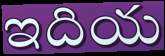
ఇదియ